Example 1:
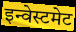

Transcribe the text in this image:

इन्वेस्टमेट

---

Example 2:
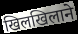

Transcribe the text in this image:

खिलखिलाने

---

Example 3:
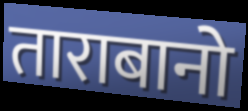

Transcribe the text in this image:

ताराबानो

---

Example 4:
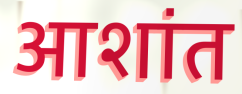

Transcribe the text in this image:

आशांत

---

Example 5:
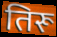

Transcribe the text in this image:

तिरू